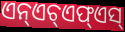
ଏନ୍ଏଚ୍ଏଫ୍ଏସ୍